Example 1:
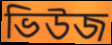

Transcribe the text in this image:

ভিউজ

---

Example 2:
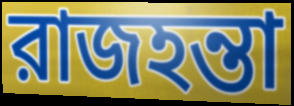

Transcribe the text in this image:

রাজহন্তা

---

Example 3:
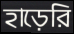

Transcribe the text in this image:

হাড়েরি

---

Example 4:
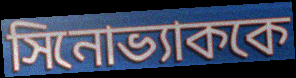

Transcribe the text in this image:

সিনোভ্যাককে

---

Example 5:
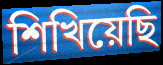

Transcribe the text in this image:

শিখিয়েছি